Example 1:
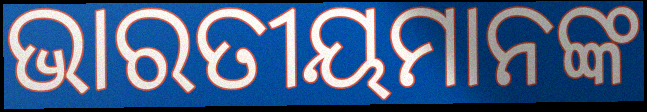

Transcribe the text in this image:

ଭାରତୀୟମାନଙ୍କ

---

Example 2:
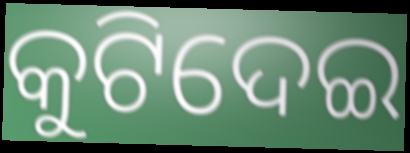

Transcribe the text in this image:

କୁଟିଦେଇ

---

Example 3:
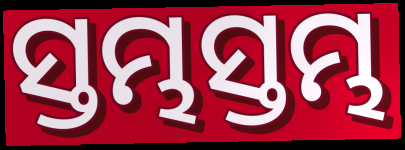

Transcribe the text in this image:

ସ୍ତମ୍ଭସ୍ତମ୍ଭ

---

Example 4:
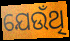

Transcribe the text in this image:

ଯେଉଁଥି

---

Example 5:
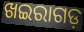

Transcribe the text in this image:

ଖଇରାଗଡ଼